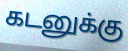
கடனுக்கு